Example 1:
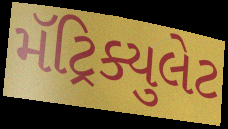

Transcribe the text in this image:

મૅટ્રિક્યુલેટ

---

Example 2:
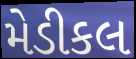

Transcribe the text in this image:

મેડીકલ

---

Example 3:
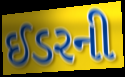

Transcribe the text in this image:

ઈડરની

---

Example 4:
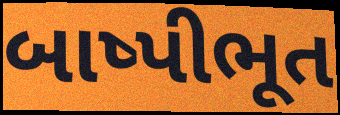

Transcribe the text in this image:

બાષ્પીભૂત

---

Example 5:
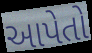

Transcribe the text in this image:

આપેતો